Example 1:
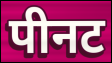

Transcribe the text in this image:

पीनट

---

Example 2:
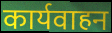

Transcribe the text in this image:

कार्यवाहन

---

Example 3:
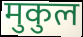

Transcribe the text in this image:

मुकुल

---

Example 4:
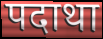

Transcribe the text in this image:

पदाथा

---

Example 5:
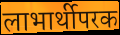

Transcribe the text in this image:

लाभार्थीपरक